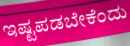
ಇಷ್ಟಪಡಬೇಕೆಂದು